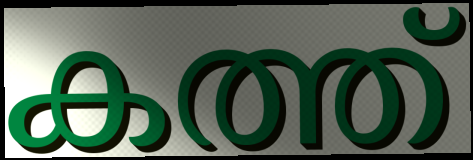
കത്ത്